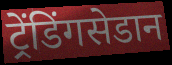
ट्रेंडिंगसेडान